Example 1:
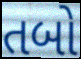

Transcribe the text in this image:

તબો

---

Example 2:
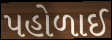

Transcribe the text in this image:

પહોળાઈ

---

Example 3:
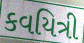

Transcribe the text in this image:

કવયિત્રી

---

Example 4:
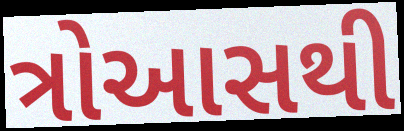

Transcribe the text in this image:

ત્રોઆસથી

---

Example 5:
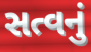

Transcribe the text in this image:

સત્વનું